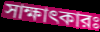
সাক্ষাৎকারঃ